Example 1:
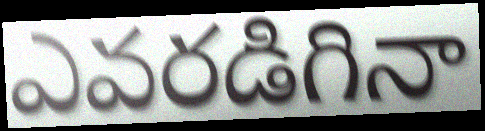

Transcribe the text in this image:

ఎవరడిగినా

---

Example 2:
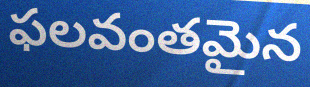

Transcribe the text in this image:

ఫలవంతమైన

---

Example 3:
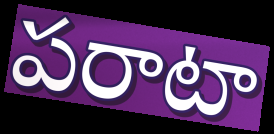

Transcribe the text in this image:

పరాటా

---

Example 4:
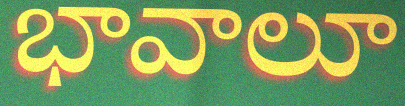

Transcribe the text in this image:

భావాలూ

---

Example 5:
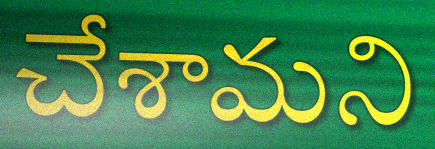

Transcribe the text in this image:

చేశామని